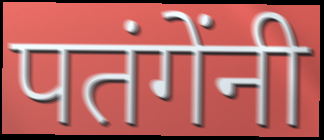
पतंगेंनी